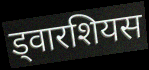
ड्वारशियस